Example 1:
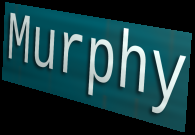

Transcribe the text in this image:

Murphy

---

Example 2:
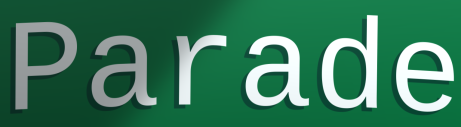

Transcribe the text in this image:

Parade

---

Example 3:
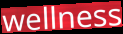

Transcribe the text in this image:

wellness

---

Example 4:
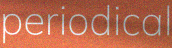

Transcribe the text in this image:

periodical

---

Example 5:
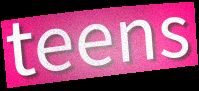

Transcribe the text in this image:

teens